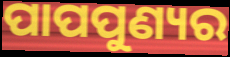
ପାପପୁଣ୍ୟର